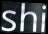
shi